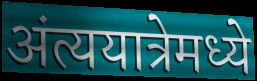
अंत्ययात्रेमध्ये